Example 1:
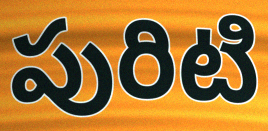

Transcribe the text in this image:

పురిటి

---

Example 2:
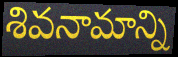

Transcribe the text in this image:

శివనామాన్ని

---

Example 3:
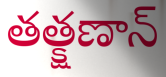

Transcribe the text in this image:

తత్క్షణాన్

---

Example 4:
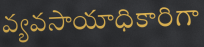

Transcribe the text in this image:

వ్యవసాయాధికారిగా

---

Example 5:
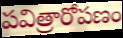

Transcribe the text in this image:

పవిత్రారోపణం